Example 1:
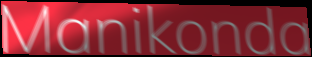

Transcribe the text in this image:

Manikonda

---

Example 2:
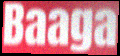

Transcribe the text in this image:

Baaga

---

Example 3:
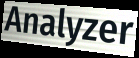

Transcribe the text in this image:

Analyzer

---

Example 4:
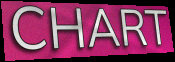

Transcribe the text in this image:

CHART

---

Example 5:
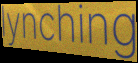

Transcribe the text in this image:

lynching